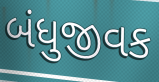
બંધુજીવક